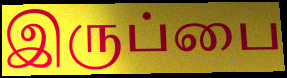
இருப்பை